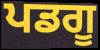
ਪਡਗੂ